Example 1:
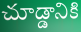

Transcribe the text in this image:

చూడ్డానికి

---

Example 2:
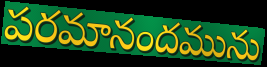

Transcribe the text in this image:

పరమానందమును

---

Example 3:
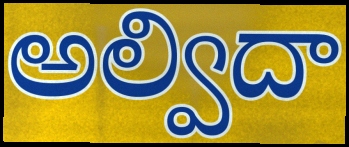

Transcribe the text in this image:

అల్విదా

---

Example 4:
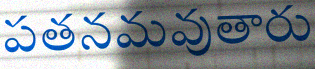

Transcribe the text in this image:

పతనమవుతారు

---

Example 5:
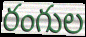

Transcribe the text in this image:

రంగుల